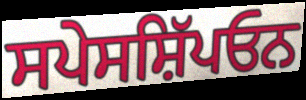
ਸਪੇਸਸ਼ਿੱਪਓਨ